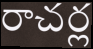
రాచర్ల